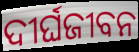
ଦୀର୍ଘଜୀବନ